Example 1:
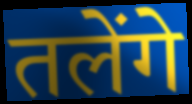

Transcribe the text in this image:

तलेंगे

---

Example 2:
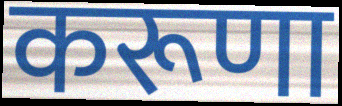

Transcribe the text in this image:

करूणा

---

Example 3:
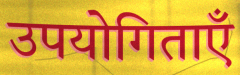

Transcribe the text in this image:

उपयोगिताएँ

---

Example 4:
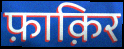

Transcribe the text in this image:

फ़ाक़िर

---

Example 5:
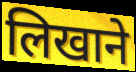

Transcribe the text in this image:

लिखाने